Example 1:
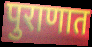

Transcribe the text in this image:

पुराणात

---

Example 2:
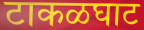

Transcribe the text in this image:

टाकळघाट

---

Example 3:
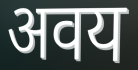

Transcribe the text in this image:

अवय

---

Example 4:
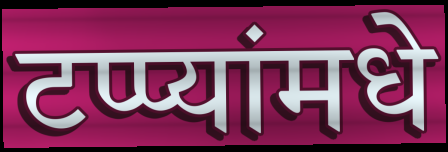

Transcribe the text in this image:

टप्प्यांमधे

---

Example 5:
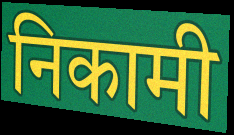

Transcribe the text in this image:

निकामी